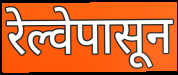
रेल्वेपासून